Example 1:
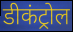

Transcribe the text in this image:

डीकंट्रोल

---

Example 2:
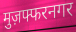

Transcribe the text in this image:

मुज़फ्फरनगर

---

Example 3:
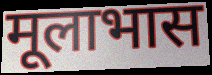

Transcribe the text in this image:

मूलाभास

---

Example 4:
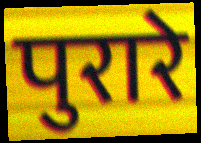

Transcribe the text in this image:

पुरारे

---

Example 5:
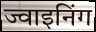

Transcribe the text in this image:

ज्वाइनिंग